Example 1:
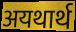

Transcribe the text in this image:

अयथार्थ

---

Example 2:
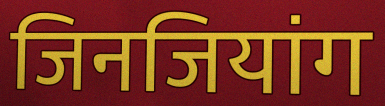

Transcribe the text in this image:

जिनजियांग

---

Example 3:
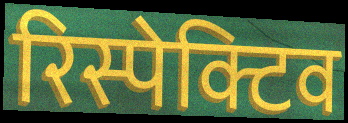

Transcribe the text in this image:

रिस्पेक्टिव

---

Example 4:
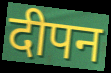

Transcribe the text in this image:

दीपन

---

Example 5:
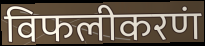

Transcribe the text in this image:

विफलीकरणं